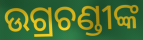
ଉଗ୍ରଚଣ୍ଡୀଙ୍କ